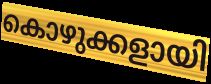
കൊഴുക്കളായി